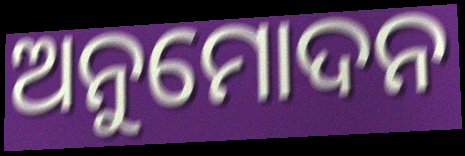
ଅନୁମୋଦନ